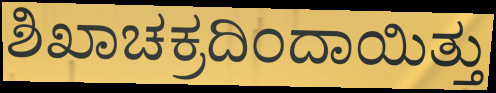
ಶಿಖಾಚಕ್ರದಿಂದಾಯಿತ್ತು